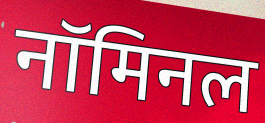
नॉमिनल